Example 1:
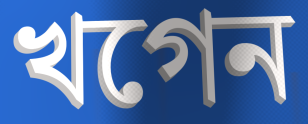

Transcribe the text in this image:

খগেন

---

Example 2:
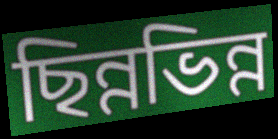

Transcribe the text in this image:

ছিন্নভিন্ন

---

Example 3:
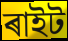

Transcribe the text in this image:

ৰাইট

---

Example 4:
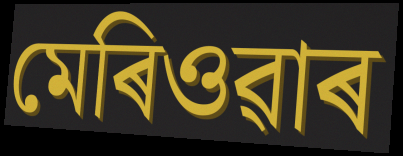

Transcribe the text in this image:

মেৰিওৱাৰ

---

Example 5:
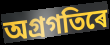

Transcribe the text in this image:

অগ্ৰগতিৰে